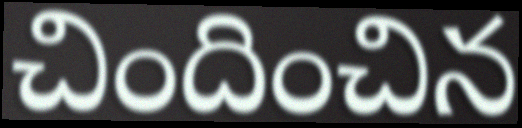
చిందించిన